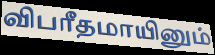
விபரீதமாயினும்